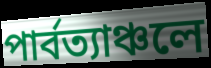
পার্বত্যাঞ্চলে